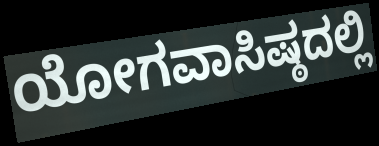
ಯೋಗವಾಸಿಷ್ಠದಲ್ಲಿ